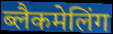
ब्लैकमेलिंग